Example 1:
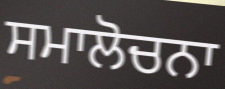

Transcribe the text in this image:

ਸਮਾਲੋਚਨਾ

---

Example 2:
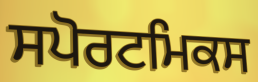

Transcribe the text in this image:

ਸਪੋਰਟਮਿਕਸ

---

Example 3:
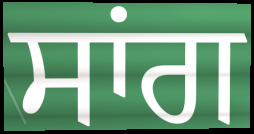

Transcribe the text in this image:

ਸਾਂਗ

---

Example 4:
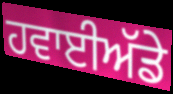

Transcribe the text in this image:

ਹਵਾਈਅੱਡੇ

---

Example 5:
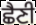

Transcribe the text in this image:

ਛੈਣੀ